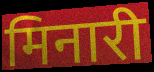
मिनारी